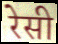
रेसी